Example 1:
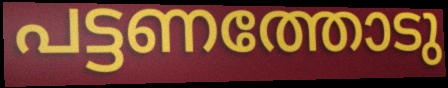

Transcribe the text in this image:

പട്ടണത്തോടു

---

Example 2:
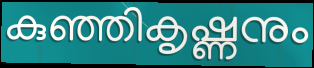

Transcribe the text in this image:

കുഞ്ഞികൃഷ്ണനും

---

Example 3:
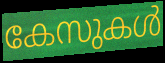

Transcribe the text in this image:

കേസുകൾ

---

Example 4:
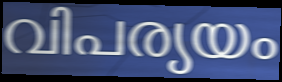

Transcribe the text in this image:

വിപര്യയം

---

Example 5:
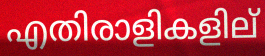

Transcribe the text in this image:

എതിരാളികളില്